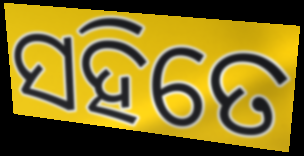
ସହିତେ